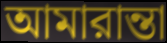
আমারান্তা